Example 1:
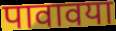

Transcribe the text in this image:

पावावया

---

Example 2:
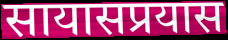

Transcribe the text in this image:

सायासप्रयास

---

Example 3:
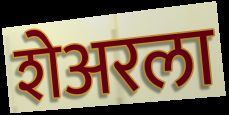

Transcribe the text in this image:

शेअरला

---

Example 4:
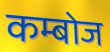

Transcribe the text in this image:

कम्बोज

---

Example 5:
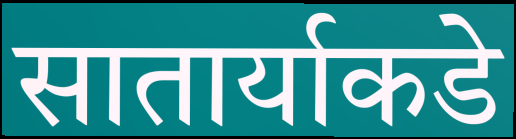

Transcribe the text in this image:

सातार्याकडे